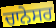
ਚਾਨੇਸਰ